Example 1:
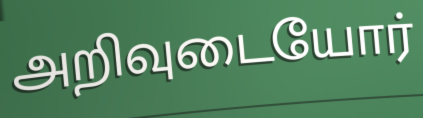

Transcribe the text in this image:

அறிவுடையோர்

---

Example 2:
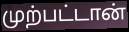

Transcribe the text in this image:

முற்பட்டான்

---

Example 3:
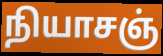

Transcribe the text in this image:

நியாசஞ்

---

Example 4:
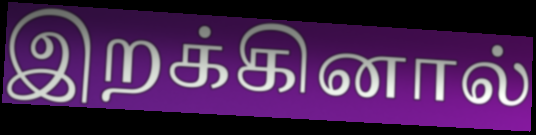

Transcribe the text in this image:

இறக்கினால்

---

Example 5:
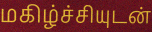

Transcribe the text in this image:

மகிழ்ச்சியுடன்